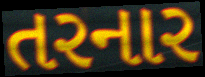
તરનાર